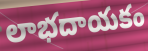
లాభదాయకం